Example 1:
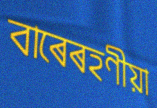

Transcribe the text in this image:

বাৰেৰহণীয়া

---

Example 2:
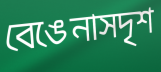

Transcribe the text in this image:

বেঙেনাসদৃশ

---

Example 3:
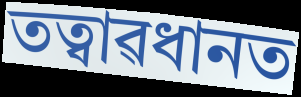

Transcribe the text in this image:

তত্বাৱধানত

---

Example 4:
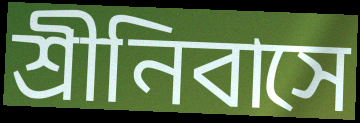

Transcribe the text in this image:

শ্ৰীনিবাসে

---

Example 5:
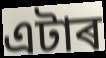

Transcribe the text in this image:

এটাৰ